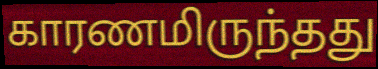
காரணமிருந்தது